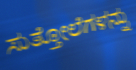
ಸುತ್ತೋಲೆಗಳನ್ನು